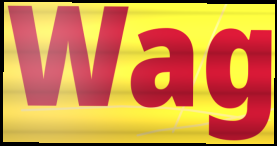
Wag